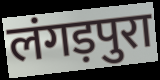
लंगड़पुरा